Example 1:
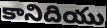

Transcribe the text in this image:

కానిదియు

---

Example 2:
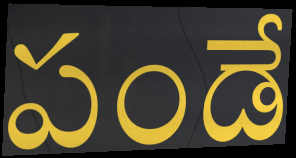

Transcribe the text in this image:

పండే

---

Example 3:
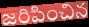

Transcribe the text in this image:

జరిపించిన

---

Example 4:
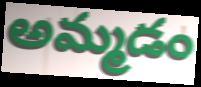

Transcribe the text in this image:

అమ్మడం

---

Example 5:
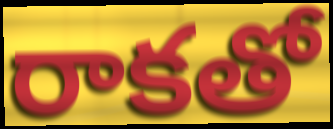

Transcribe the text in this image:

రాకతో